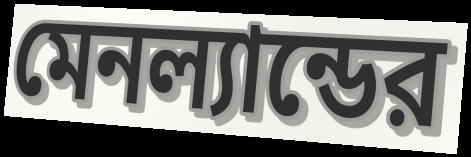
মেনল্যান্ডের